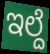
ಇಲ್ದೆ